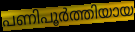
പണിപൂർത്തിയായ